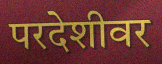
परदेशीवर